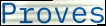
Proves